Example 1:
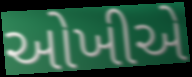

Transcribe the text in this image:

ઓખીએ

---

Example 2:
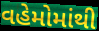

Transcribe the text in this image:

વહેમોમાંથી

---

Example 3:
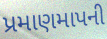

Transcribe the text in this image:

પ્રમાણમાપની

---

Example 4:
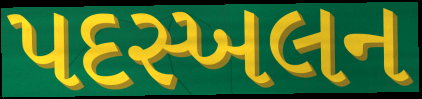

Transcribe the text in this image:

પદસ્ખલન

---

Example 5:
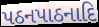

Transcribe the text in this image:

પઠનપાઠનાદિ